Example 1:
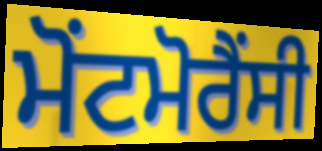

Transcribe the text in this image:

ਮੋਂਟਮੋਰੈਂਸੀ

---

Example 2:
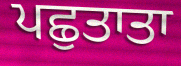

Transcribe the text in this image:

ਪਛੁਤਾਤਾ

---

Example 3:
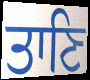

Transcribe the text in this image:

ਤਾਣਿ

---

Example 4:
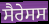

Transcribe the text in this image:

ਸੈਰੇਸਸ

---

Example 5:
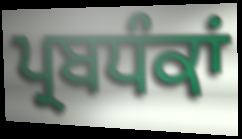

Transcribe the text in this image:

ਪ੍ਰਬਧੰਕਾਂ